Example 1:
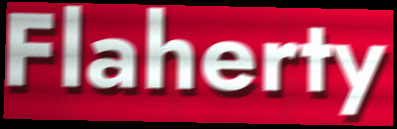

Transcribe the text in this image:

Flaherty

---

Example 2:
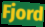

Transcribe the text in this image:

Fjord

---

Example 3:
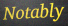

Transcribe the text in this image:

Notably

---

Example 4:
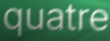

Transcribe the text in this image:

quatre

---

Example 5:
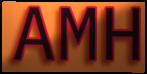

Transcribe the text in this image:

AMH